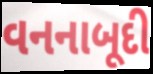
વનનાબૂદી